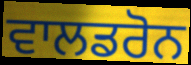
ਵਾਲਡਰੋਨ